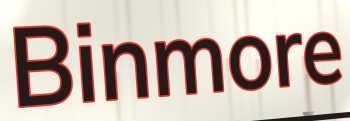
Binmore